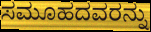
ಸಮೂಹದವರನ್ನು